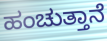
ಹಂಚುತ್ತಾನೆ